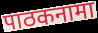
पाठकनामा